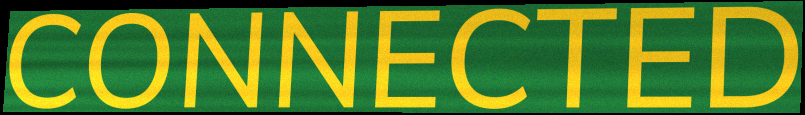
CONNECTED